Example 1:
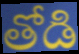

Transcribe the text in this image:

తోడి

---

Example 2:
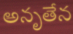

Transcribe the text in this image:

అనృతేన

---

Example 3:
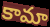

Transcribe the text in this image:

కామా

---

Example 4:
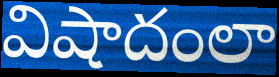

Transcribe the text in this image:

విషాదంలా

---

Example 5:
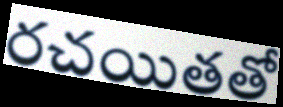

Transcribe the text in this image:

రచయితతో